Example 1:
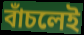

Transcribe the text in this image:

বাঁচলেই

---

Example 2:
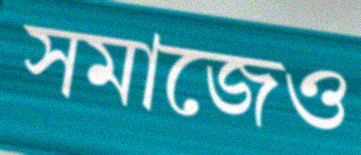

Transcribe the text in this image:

সমাজেও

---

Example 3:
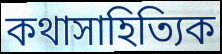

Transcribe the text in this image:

কথাসাহিত্যিক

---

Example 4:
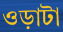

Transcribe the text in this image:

ওড়াটা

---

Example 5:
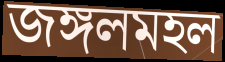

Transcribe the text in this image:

জঙ্গলমহল